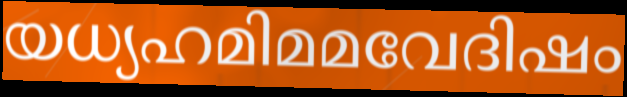
യധ്യഹമിമമവേദിഷം